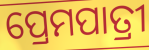
ପ୍ରେମପାତ୍ରୀ